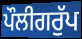
ਪੌਲੀਗਰੁੱਪ